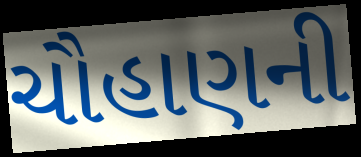
ચૌહાણની